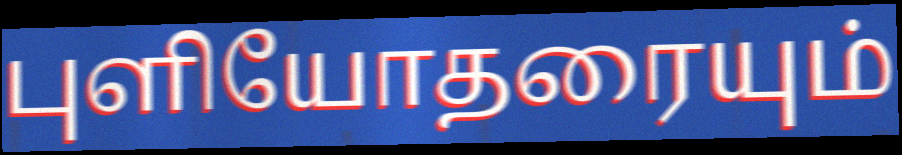
புளியோதரையும்